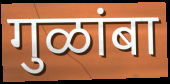
गुळांबा